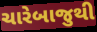
ચારેબાજુથી